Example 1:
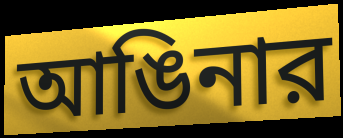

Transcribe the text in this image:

আঙিনার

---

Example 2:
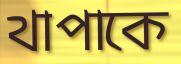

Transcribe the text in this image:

থাপাকে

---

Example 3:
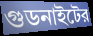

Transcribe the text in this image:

গুডনাইটের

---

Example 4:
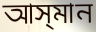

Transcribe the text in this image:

আস্‌মান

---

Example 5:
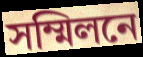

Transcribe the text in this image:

সম্মিলনে